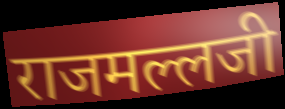
राजमल्लजी